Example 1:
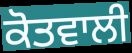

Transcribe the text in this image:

ਕੋਤਵਾਲੀ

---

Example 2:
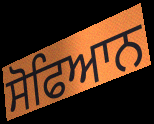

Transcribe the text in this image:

ਸੋਫਿਆਨ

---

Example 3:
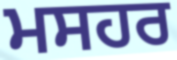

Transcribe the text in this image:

ਮਸਹਰ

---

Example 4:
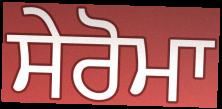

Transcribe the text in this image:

ਸੇਰੋਮਾ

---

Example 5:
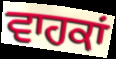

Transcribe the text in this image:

ਵਾਹਕਾਂ